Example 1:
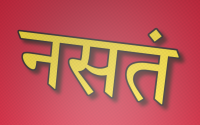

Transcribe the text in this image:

नसतं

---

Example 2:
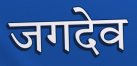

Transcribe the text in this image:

जगदेव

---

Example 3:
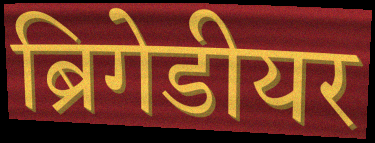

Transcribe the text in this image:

ब्रिगेडीयर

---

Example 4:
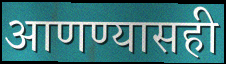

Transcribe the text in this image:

आणण्यासही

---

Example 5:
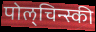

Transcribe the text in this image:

पोल्चिन्स्की